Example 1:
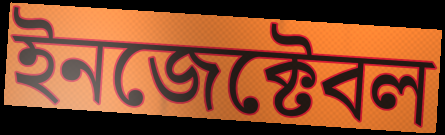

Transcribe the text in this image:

ইনজেক্টেবল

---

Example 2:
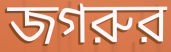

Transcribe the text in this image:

জগরুর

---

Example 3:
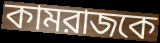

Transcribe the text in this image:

কামরাজকে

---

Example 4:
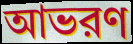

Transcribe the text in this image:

আভরণ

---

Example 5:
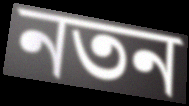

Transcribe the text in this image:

নতন